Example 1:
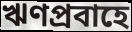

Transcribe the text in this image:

ঋণপ্রবাহে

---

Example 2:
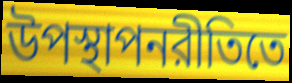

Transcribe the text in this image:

উপস্থাপনরীতিতে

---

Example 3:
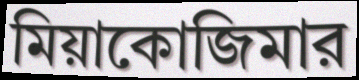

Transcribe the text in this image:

মিয়াকোজিমার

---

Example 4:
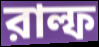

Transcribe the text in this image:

রাল্ফ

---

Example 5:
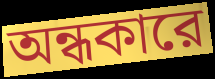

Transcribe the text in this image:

অন্ধকারে